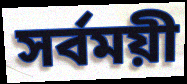
সর্বময়ী